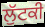
ਲੁੱਟਕੀ